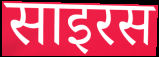
साइरस